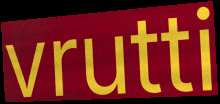
vrutti